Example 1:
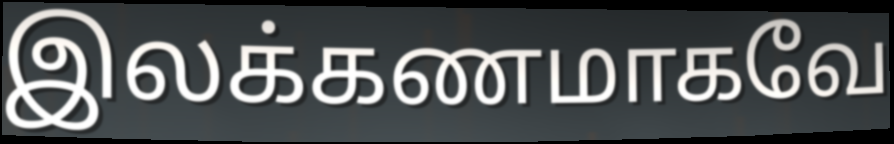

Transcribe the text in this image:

இலக்கணமாகவே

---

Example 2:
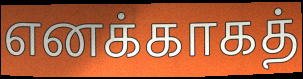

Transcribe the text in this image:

எனக்காகத்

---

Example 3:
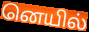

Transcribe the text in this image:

னெயில்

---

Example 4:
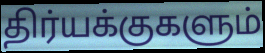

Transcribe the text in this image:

திர்யக்குகளும்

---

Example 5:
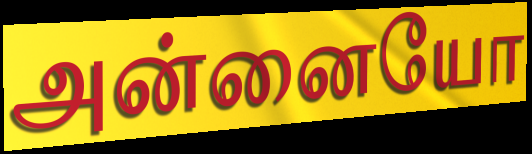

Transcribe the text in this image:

அன்னையோ